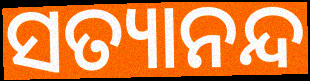
ସତ୍ୟାନନ୍ଦ